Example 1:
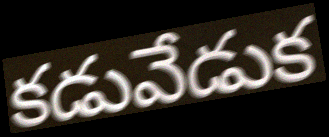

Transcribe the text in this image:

కడువేడుక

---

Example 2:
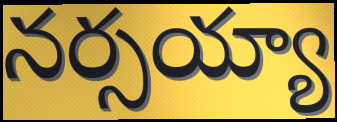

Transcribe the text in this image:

నర్సయ్యా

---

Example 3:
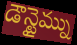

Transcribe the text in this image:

డౌన్టైమ్ను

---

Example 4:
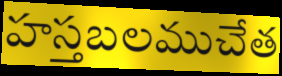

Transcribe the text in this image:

హస్తబలముచేత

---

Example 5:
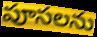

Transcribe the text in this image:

పూసలను